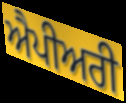
ਐਪੀਅਰੀ